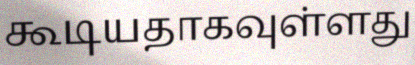
கூடியதாகவுள்ளது